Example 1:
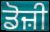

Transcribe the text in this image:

ਡੋਜ਼ੀ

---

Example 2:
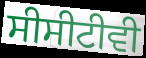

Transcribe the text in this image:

ਸੀਸੀਟੀਵੀ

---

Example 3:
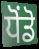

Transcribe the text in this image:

ਧੋਂਡੋ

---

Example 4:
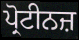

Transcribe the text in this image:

ਪ੍ਰੋਟੀਨਜ਼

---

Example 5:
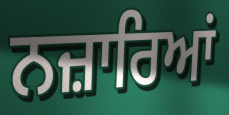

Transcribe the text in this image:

ਨਜ਼ਾਰਿਆਂ